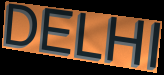
DELHI